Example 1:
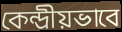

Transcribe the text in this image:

কেন্দ্রীয়ভাবে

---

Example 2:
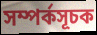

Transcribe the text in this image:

সম্পর্কসূচক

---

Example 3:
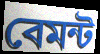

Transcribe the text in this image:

বেমন্ট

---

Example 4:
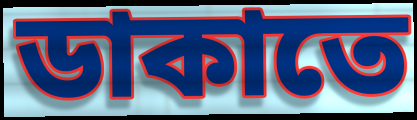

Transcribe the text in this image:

ডাকাতে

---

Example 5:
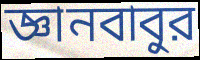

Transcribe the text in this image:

জ্ঞানবাবুর